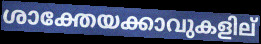
ശാക്തേയക്കാവുകളില്